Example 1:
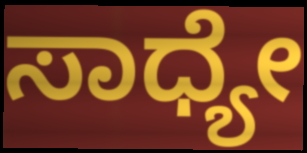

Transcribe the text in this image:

ಸಾಧ್ಯೇ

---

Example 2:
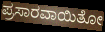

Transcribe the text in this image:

ಪ್ರಸಾರವಾಯಿತೋ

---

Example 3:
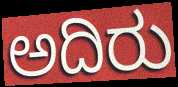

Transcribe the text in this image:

ಅದಿರು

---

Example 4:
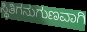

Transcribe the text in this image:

ಸ್ಥಿತಿಗನುಗುಣವಾಗಿ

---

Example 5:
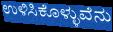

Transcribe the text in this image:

ಉಳಿಸಿಕೊಳ್ಳುವೆನು